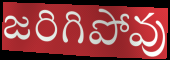
జరిగిపోవు